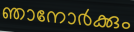
ഞാനോർക്കും